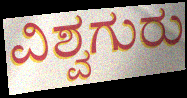
ವಿಶ್ವಗುರು